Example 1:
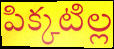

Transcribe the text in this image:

పిక్కటిల్ల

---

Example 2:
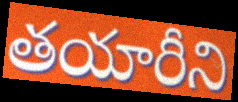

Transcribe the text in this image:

తయారీని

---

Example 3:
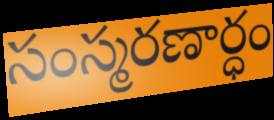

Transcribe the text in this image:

సంస్మరణార్ధం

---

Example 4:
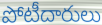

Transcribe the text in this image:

పోటీదారులు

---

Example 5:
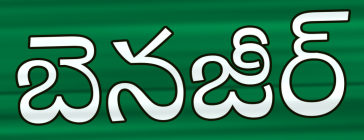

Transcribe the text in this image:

బెనజీర్